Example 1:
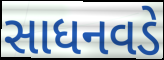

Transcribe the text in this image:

સાધનવડે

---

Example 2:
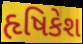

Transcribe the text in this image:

હૃષિકેશ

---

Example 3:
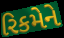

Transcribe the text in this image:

રિકમેને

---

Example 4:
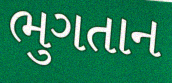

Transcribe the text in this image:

ભુગતાન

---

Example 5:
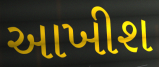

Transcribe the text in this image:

આખીશ